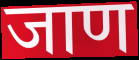
जाण